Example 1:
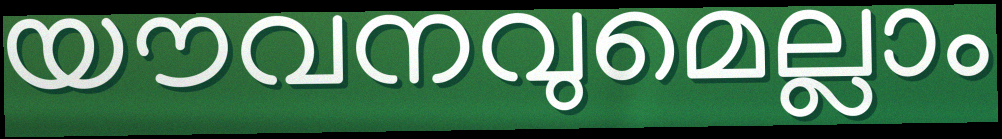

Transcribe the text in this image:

യൗവനവുമെല്ലാം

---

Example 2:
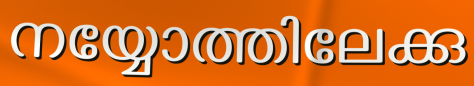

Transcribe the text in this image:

നയ്യോത്തിലേക്കു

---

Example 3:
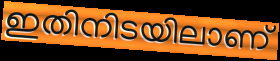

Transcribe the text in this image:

ഇതിനിടയിലാണ്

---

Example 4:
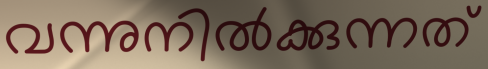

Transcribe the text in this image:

വന്നുനിൽക്കുന്നത്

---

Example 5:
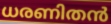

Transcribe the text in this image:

ധരണിതൻ